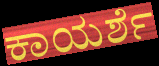
ಕಾಯರ್ಶೆ